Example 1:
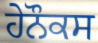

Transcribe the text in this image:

ਹੇਨੌਕਸ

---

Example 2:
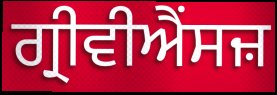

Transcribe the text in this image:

ਗ੍ਰੀਵੀਐਂਸਜ਼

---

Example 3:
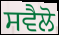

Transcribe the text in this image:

ਸਵੈਲੋ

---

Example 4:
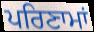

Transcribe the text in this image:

ਪਰਿਣਾਮਾਂ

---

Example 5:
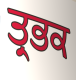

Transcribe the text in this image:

ਤ੍ਰਭਕ